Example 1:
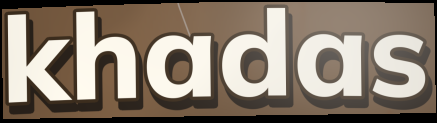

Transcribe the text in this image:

khadas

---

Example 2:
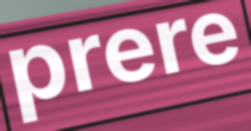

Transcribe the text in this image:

prere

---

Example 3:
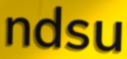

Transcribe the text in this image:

ndsu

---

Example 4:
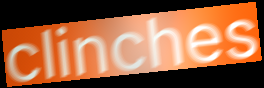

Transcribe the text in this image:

clinches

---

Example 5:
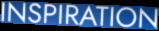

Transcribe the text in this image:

INSPIRATION